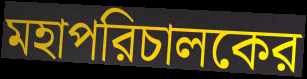
মহাপরিচালকের